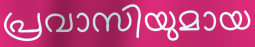
പ്രവാസിയുമായ